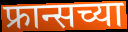
फ्रान्सच्या